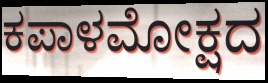
ಕಪಾಳಮೋಕ್ಷದ